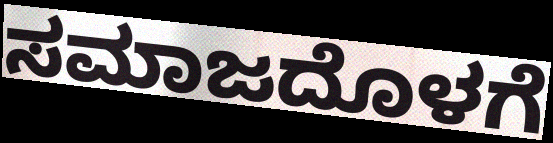
ಸಮಾಜದೊಳಗೆ